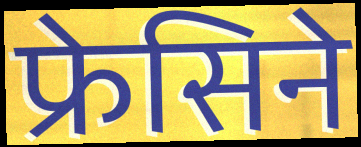
फ्रेसिने